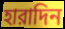
হারাদিন